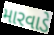
મારવાડે